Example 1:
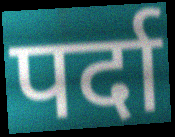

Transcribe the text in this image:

पर्दा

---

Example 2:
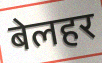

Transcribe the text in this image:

बेलहर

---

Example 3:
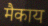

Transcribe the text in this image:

मैकाय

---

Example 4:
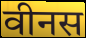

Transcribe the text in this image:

वीनस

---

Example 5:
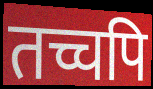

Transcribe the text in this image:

तच्चपि